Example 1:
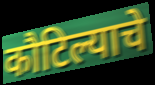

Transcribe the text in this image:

कौटिल्याचे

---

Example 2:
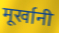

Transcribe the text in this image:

मूर्खानी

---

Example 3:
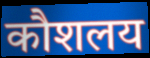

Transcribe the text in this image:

कौशलय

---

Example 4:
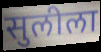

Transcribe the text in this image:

सुलीला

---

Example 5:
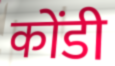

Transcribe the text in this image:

कोंडी